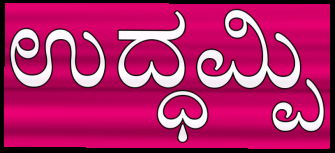
ಉದ್ಧಮ್ಪಿ